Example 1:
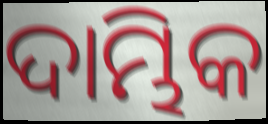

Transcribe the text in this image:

ଦାମ୍ଭିକ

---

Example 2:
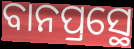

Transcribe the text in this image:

ବାନପ୍ରସ୍ଥେ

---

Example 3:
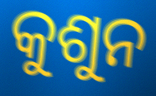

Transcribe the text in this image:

କୁଶୁନ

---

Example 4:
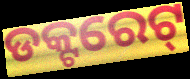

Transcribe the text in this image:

ଡକ୍ଟରେଟ୍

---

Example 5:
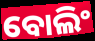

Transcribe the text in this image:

ବୋଲିଂ